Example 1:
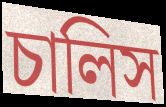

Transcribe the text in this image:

চালিস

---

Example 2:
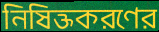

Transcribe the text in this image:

নিষিক্তকরণের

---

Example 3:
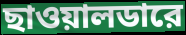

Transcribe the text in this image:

ছাওয়ালডারে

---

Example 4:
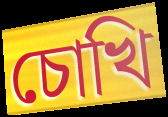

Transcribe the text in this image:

চোখি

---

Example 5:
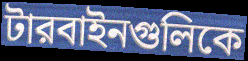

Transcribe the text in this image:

টারবাইনগুলিকে